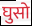
घुसो